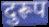
दुरूप